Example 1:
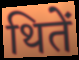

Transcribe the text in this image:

थितें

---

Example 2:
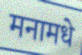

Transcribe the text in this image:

मनामधे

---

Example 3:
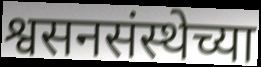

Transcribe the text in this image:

श्वसनसंस्थेच्या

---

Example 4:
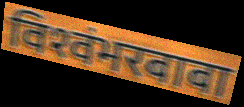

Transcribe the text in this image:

विश्वंभरबाबा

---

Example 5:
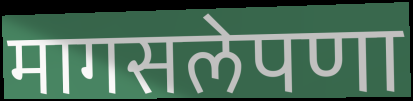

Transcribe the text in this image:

मागसलेपणा